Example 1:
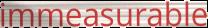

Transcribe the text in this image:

immeasurable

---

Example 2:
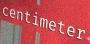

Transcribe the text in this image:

centimeter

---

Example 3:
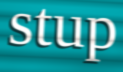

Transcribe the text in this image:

stup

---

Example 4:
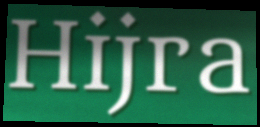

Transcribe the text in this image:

Hijra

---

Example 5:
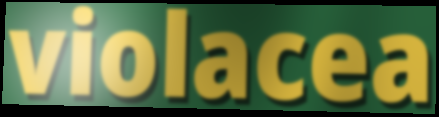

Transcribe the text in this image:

violacea